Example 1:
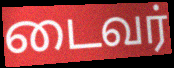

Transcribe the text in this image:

டைவர்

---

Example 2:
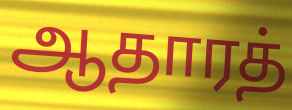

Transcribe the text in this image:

ஆதாரத்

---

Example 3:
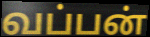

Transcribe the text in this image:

வப்பன்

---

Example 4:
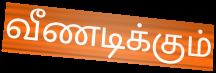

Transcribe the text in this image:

வீணடிக்கும்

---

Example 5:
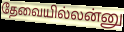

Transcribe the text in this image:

தேவையில்லன்னு